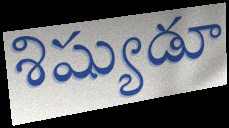
శిష్యుడూ